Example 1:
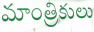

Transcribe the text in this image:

మాంత్రికులు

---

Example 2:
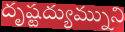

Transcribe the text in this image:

దృష్టద్యుమ్నుని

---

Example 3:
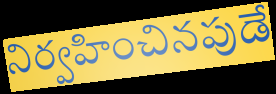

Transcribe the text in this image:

నిర్వహించినపుడే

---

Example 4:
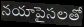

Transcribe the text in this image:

నయాపైసలతో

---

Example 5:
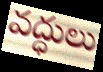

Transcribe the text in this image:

వద్ధులు